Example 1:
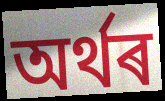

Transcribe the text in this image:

অৰ্থৰ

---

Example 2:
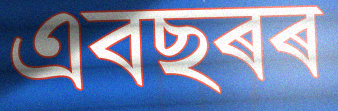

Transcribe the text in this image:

এবছৰৰ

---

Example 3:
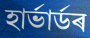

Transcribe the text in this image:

হাৰ্ভাৰ্ডৰ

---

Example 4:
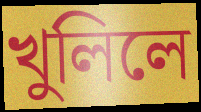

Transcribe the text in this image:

খুলিলে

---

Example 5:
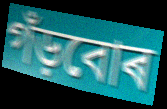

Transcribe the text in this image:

গঁড়বোৰ